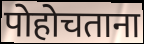
पोहोचताना